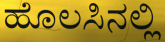
ಹೊಲಸಿನಲ್ಲಿ